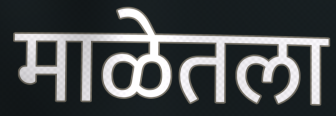
माळेतला